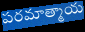
పరమాత్మాయ